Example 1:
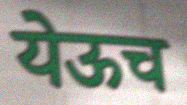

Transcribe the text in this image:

येऊच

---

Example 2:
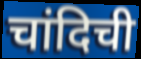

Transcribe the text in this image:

चांदिची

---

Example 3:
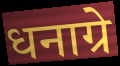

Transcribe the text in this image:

धनाग्रे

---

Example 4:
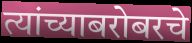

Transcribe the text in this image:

त्यांच्याबरोबरचे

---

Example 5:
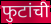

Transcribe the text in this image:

फुटांची